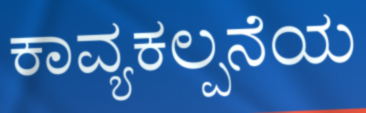
ಕಾವ್ಯಕಲ್ಪನೆಯ